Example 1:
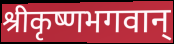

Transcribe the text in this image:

श्रीकृष्णभगवान्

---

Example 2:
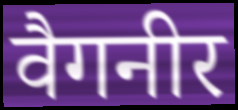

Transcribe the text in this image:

वैगनीर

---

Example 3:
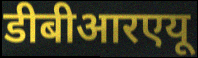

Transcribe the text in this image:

डीबीआरएयू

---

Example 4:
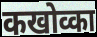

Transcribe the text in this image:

कखोव्का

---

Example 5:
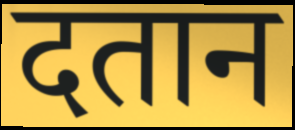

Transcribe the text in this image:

दतान